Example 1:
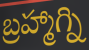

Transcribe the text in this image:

బ్రహ్మాగ్ని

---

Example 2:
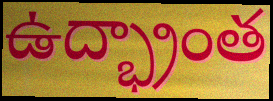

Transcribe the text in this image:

ఉద్భ్రాంత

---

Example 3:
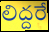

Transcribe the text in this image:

లిద్దరే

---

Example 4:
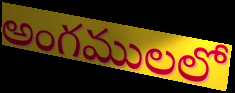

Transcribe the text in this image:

అంగములలో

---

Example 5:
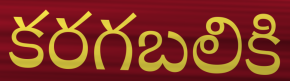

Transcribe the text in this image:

కరగబలికి